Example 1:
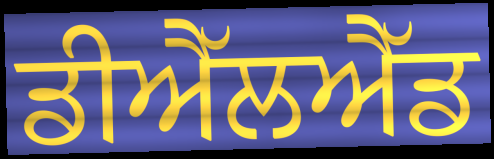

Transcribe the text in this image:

ਡੀਐੱਲਐੱਡ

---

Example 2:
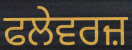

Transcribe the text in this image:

ਫਲੇਵਰਜ਼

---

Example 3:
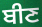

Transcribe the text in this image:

ਬੀਣ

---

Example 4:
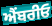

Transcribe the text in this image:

ਐਂਬਰੀਓ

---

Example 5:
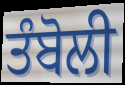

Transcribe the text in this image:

ਤੰਬੋਲੀ